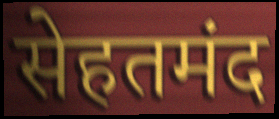
सेहतमंद